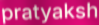
pratyaksh